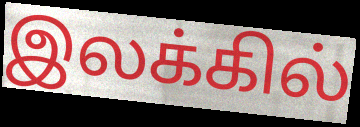
இலக்கில்